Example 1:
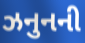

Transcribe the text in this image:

ઝનુનની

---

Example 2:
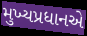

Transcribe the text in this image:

મુખ્યપ્રધાનએ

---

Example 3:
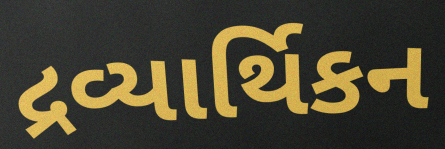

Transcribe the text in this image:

દ્રવ્યાર્થિકન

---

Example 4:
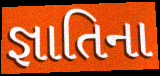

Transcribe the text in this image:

જ્ઞાતિના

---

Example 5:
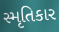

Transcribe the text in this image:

સ્મૃતિકાર